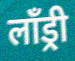
लॉंड्री